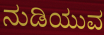
ನುಡಿಯುವ